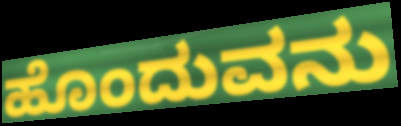
ಹೊಂದುವನು